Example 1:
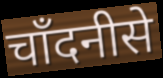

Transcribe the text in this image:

चाँदनीसे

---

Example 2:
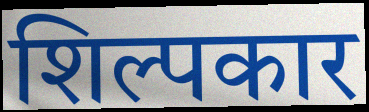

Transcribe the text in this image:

शिल्पकार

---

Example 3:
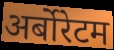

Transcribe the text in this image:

अर्बोरेटम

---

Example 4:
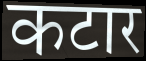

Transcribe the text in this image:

कटार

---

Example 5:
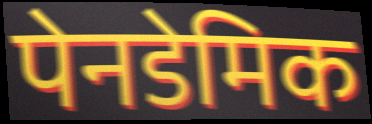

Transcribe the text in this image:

पेनडेमिक